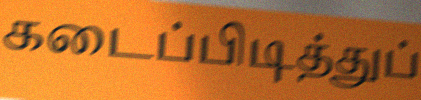
கடைப்பிடித்துப்